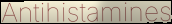
Antihistamines